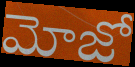
మోజో